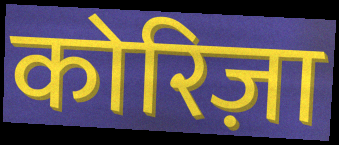
कोरिज़ा